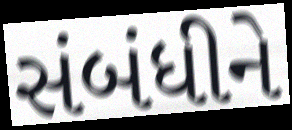
સંબંધીને